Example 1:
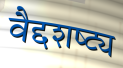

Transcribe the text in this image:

वैद्दशष्ट्य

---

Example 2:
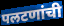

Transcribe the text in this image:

पलटणांची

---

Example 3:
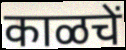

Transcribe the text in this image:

काळचें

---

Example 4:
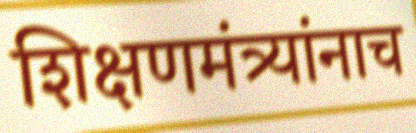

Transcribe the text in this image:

शिक्षणमंत्र्यांनाच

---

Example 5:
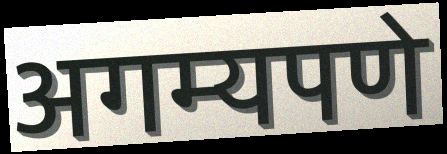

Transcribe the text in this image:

अगम्यपणे